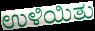
ಉಳಿಯಿತು